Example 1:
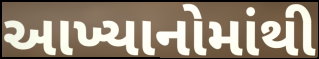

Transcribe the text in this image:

આખ્યાનોમાંથી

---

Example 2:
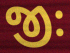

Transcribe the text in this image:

જીઃ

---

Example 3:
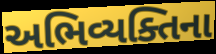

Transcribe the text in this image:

અભિવ્યક્તિના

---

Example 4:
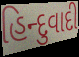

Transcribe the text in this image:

હિન્દુવાદી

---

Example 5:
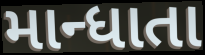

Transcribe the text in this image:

માન્ધાતા